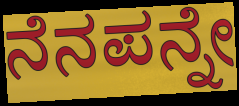
ನೆನಪನ್ನೇ